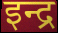
इन्द्र